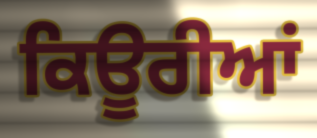
ਕਿਊਰੀਆਂ